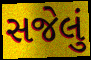
સજેલું